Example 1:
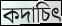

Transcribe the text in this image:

কদাচিৎ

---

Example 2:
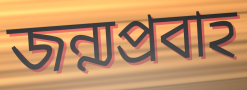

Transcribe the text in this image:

জন্মপ্রবাহ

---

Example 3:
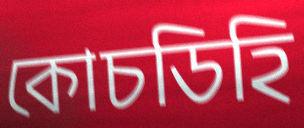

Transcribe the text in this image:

কোচডিহি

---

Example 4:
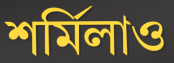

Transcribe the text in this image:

শর্মিলাও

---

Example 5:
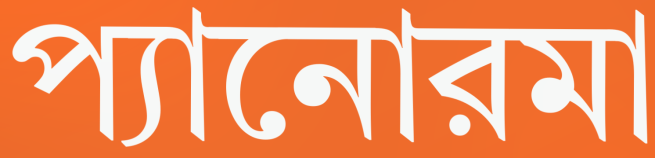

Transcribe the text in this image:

প্যানোরমা